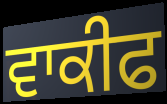
ਵਾਕੀਫ